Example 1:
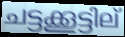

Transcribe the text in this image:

ചട്ടക്കൂട്ടില്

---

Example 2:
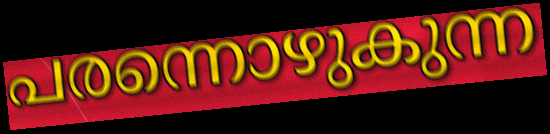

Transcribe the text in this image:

പരന്നൊഴുകുന്ന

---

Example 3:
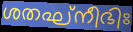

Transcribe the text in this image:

ശതഘ്നീഭിഃ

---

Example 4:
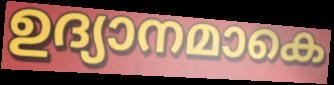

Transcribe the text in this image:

ഉദ്യാനമാകെ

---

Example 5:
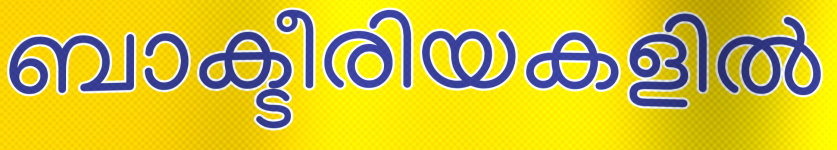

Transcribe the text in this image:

ബാക്ടീരിയകളിൽ